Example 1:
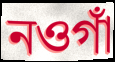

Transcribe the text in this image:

নওগাঁ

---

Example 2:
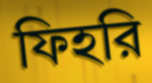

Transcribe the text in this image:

ফিহরি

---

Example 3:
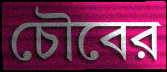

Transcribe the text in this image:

চৌবের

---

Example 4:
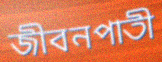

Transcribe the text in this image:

জীবনপাতী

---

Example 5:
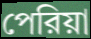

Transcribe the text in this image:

পেরিয়া